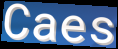
Caes